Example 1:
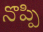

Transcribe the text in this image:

నొప్పి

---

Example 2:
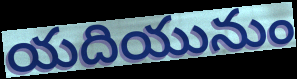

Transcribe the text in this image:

యదియునుం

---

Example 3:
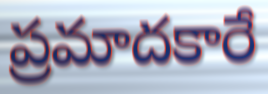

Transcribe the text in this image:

ప్రమాదకారే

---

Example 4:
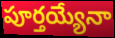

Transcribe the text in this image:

పూర్తయ్యేనా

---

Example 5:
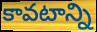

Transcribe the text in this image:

కావటాన్ని